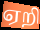
ஏறி